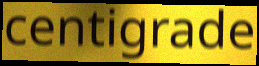
centigrade